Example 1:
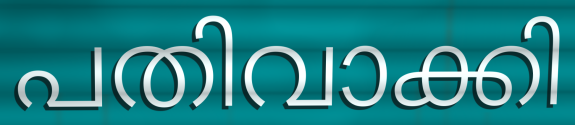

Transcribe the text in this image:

പതിവാക്കി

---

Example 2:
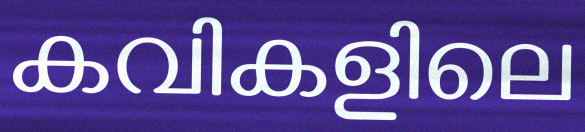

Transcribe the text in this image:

കവികളിലെ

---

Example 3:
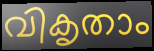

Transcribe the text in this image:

വികൃതാം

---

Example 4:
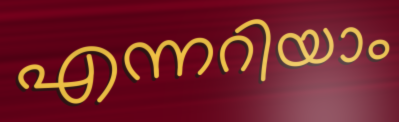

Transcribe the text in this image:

എന്നറിയാം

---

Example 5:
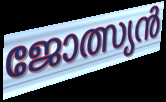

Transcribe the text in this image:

ജോത്സ്യൻ